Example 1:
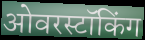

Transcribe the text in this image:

ओवरस्टॉकिंग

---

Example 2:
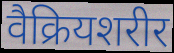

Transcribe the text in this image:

वैक्रियशरीर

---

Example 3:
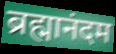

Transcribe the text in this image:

ब्रह्मानंदम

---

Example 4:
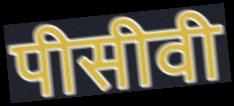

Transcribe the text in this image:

पीसीवी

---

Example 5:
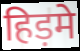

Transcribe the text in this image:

हिड़मे